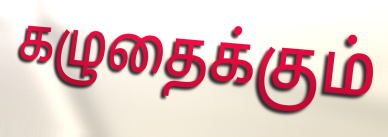
கழுதைக்கும்